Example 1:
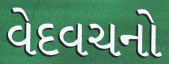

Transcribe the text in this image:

વેદવચનો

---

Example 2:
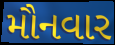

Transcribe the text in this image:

મૌનવાર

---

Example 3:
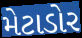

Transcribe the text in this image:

મેટાડોર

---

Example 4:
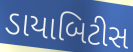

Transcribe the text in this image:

ડાયાબિટીસ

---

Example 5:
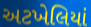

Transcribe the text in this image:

અટખેલિયાં